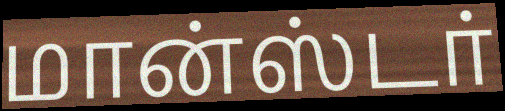
மான்ஸ்டர்